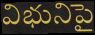
విభునిపై